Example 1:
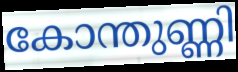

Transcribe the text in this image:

കോന്തുണ്ണി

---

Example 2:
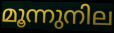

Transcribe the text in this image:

മൂന്നുനില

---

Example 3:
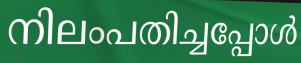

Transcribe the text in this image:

നിലംപതിച്ചപ്പോൾ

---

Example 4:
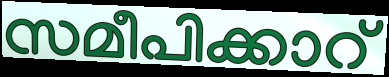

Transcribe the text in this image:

സമീപിക്കാറ്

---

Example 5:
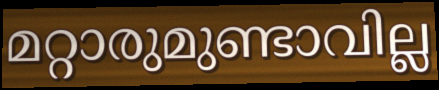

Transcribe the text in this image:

മറ്റാരുമുണ്ടാവില്ല